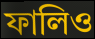
ফালিও